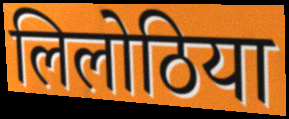
लिलोठिया